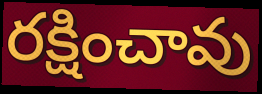
రక్షించావు